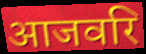
आजवरि